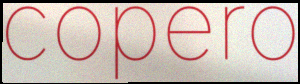
copero